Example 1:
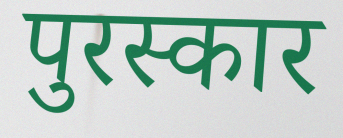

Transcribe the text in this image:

पुरस्कार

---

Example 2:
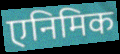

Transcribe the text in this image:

एनिमिक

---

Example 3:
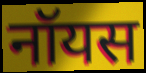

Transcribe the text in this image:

नॉयस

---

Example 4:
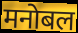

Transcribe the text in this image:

मनोबल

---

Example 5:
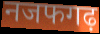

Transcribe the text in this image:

नजफगढ़